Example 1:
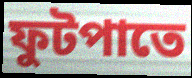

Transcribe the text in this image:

ফুটপাতে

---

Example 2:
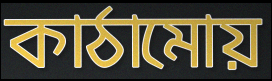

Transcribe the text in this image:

কাঠামোয়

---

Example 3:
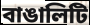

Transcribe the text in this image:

বাঙালিটি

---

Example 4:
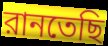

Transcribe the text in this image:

রানতেছি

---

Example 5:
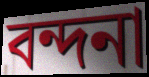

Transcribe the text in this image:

বন্দনা